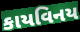
કાયવિનય